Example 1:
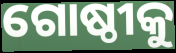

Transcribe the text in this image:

ଗୋଷ୍ଠୀକୁ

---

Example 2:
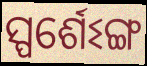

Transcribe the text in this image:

ସ୍ପର୍ଶେଽଙ୍ଗ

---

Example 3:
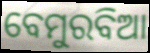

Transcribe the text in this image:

ବେମୁରବିଆ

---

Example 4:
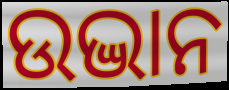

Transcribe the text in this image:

ଉଦ୍ଭାନ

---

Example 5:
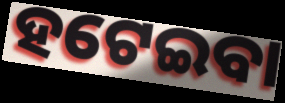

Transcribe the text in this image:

ହଟେଇବା